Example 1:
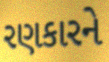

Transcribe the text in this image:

રણકારને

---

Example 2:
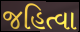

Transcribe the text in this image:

જહિત્વા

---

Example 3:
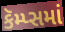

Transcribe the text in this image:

કૅમ્પ્સમાં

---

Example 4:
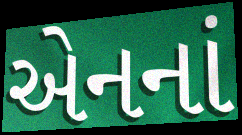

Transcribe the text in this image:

એનનાં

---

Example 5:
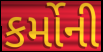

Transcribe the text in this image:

કર્મોની